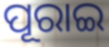
ପୂରାଇ